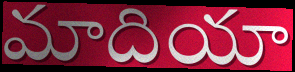
మాదియా